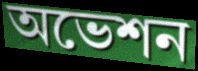
অভেশন